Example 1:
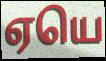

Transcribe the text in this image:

ஏயெ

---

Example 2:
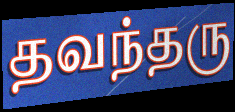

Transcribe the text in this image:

தவந்தரு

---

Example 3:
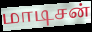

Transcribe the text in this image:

மாடிசன்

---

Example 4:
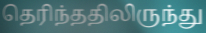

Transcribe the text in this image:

தெரிந்ததிலிருந்து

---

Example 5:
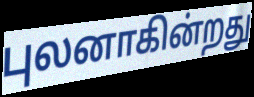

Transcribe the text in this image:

புலனாகின்றது